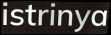
istrinya